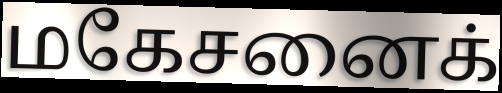
மகேசனைக்